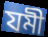
যমী